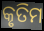
କୃତିମ